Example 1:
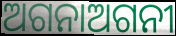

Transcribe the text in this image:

ଅଗନାଅଗନୀ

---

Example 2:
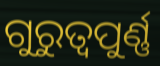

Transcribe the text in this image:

ଗୁରୁତ୍ୱପୁର୍ଣ୍ଣ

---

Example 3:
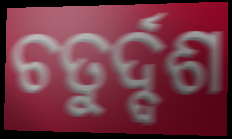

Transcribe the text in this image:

ଚତୁର୍ଦ୍ଦଶ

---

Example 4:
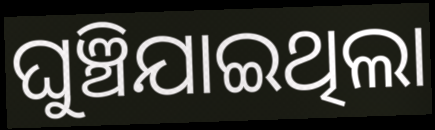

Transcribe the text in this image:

ଘୁଞ୍ଚିଯାଇଥିଲା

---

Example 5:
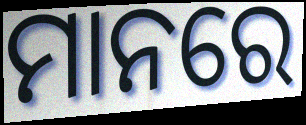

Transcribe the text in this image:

ମାନରେ